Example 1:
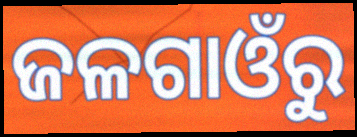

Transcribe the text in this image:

ଜଳଗାଓଁରୁ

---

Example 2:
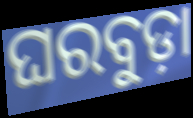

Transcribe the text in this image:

ଘରବୁଡ଼ା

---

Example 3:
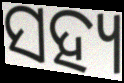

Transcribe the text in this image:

ସହ୍ଯ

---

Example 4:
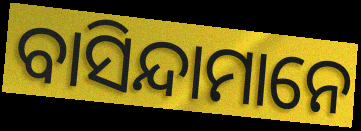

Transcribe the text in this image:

ବାସିନ୍ଦାମାନେ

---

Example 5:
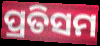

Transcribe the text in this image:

ପ୍ରତିସମ